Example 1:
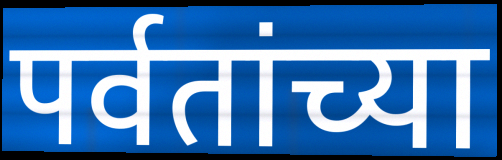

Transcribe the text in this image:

पर्वतांच्या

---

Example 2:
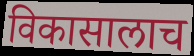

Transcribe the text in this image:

विकासालाच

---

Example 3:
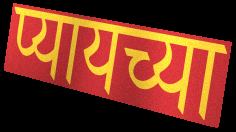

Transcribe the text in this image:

प्यायच्या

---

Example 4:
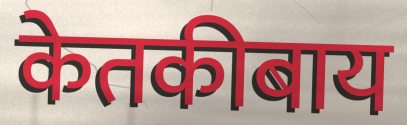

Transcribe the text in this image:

केतकीबाय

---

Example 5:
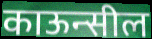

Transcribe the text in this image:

काऊन्सील